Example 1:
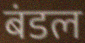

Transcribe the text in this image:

बंडल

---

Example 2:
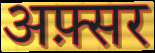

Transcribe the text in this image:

अफ़्सर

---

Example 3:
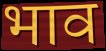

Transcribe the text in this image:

भाव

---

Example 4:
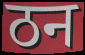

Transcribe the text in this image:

ठन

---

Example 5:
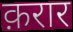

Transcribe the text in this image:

क़रार